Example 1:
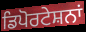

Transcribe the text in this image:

ਡਿਪੋਰਟੇਸ਼ਨਾਂ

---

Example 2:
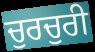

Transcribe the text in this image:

ਚੁਰਚੁਰੀ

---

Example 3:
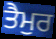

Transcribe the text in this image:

ਤੈਮੁਰ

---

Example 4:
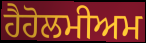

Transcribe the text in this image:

ਹੈਹੋਲਮੀਅਮ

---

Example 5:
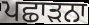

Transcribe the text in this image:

ਪਛਾੜਨਾ